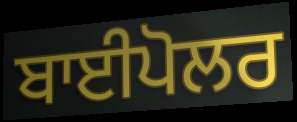
ਬਾਈਪੋਲਰ